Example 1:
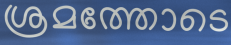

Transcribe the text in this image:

ശ്രമത്തോടെ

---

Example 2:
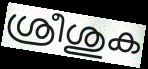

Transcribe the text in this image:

ശ്രീശുക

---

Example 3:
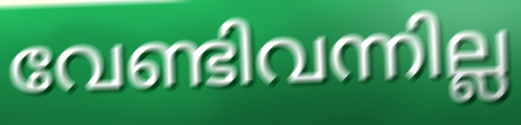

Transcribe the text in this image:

വേണ്ടിവന്നില്ല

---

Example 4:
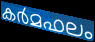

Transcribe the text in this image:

കർമഫലം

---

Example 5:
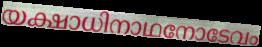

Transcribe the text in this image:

യക്ഷാധിനാഥനോടേവം